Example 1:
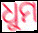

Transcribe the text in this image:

ଧୁମ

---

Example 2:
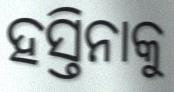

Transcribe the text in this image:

ହସ୍ତିନାକୁ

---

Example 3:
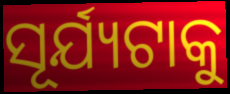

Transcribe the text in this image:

ସୂର୍ଯ୍ୟଟାକୁ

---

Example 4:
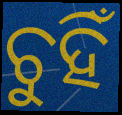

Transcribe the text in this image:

ଚୁହିଁ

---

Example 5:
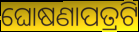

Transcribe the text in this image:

ଘୋଷଣାପତ୍ରଟି